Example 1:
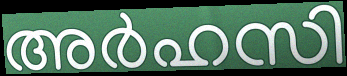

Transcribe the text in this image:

അർഹസി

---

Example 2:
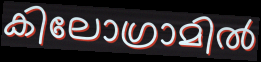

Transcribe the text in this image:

കിലോഗ്രാമിൽ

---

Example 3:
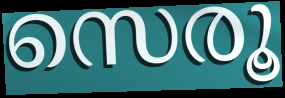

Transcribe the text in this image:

സെരൂ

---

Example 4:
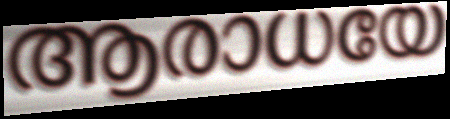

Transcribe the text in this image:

ആരാധയേ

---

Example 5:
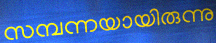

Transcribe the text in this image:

സമ്പന്നയായിരുന്നു